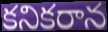
కనికరాన